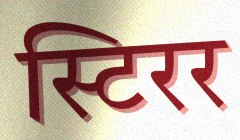
स्टिरर